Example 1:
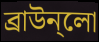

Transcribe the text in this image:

ব্রাউন্লো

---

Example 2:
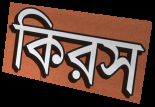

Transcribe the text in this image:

কিরস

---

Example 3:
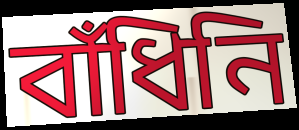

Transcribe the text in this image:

বাঁধিনি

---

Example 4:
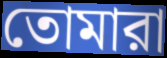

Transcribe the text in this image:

তোমারা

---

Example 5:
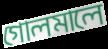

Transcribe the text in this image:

গোলমালে